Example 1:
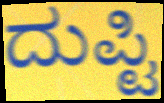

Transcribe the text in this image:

ದುಪ್ಟಿ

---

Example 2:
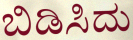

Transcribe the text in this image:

ಬಿಡಿಸಿದು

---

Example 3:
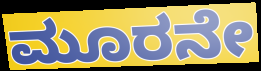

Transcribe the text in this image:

ಮೂರನೇ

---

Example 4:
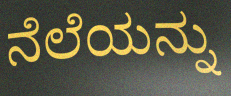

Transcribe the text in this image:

ನೆಲೆಯನ್ನು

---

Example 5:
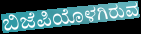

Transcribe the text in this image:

ಬಿಜೆಪಿಯೊಳಗಿರುವ